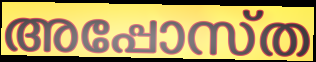
അപ്പോസ്‌ത